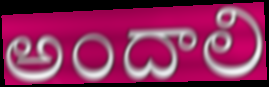
అందాలి